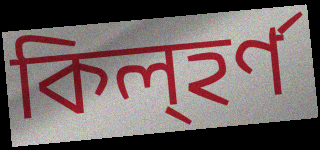
কিল্‌হর্ণ